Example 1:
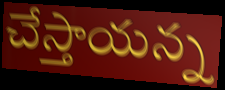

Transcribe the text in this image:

చేస్తాయన్న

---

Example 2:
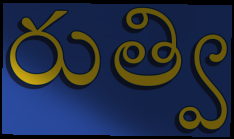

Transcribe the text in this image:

రుత్వి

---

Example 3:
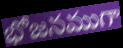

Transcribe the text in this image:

భోజనముగా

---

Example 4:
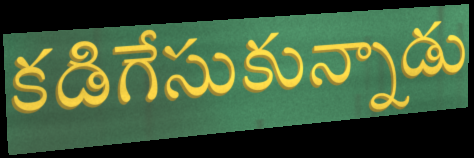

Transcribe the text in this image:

కడిగేసుకున్నాడు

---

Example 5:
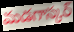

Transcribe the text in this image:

మడగాస్కర్